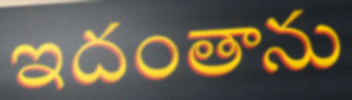
ఇదంతాను